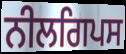
ਨੀਲਗਿਪਸ